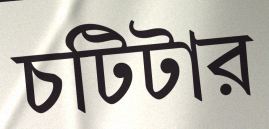
চটিটার